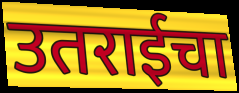
उतराईचा